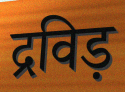
द्रविड़